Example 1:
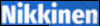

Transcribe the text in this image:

Nikkinen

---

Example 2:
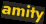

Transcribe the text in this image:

amity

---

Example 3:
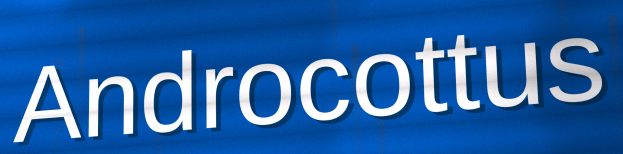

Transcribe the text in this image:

Androcottus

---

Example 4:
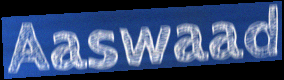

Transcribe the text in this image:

Aaswaad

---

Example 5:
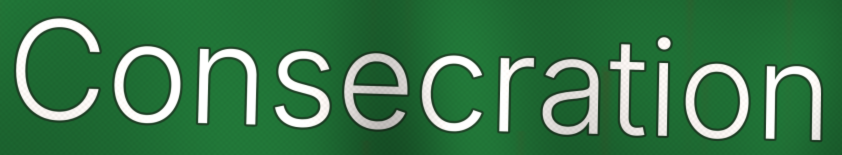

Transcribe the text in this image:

Consecration